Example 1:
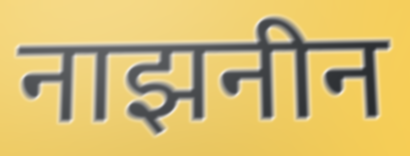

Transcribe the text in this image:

नाझनीन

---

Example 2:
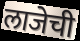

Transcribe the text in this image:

लाजेची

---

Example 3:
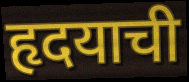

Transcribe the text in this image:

हृदयाची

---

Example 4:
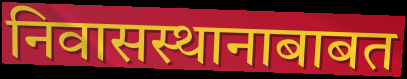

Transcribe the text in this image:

निवासस्थानाबाबत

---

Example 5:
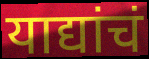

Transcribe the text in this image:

याद्यांचं